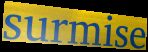
surmise